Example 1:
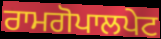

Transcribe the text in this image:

ਰਾਮਗੋਪਾਲਪੇਟ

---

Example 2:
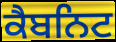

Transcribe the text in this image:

ਕੈਬਨਿਟ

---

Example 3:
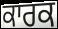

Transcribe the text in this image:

ਕਾਰਕ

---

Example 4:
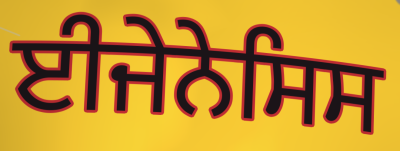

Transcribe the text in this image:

ਈਜੇਨੇਸਿਸ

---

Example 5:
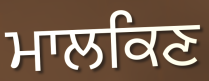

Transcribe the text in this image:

ਮਾਲਕਿਣ